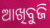
ଆଖିବୁଜି